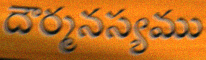
దౌర్మనస్యము